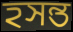
হসন্ত